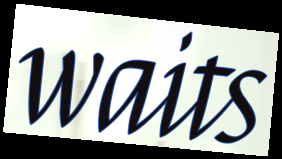
waits